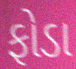
ફોડા